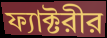
ফ্যাক্টরীর